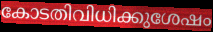
കോടതിവിധിക്കുശേഷം